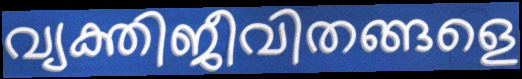
വ്യക്തിജീവിതങ്ങളെ